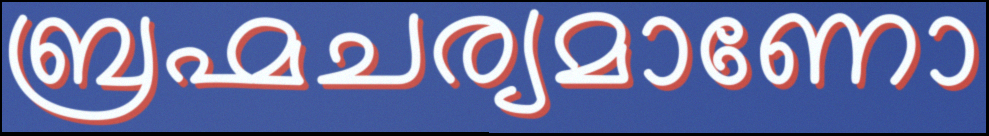
ബ്രഹ്മചര്യമാണോ